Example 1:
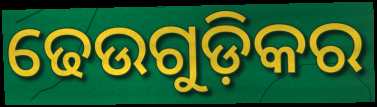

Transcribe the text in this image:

ଢେଉଗୁଡ଼ିକର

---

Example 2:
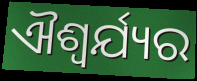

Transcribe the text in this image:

ଐଶ୍ଵର୍ଯ୍ୟର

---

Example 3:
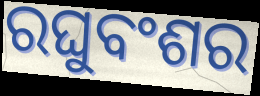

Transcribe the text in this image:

ରଘୁବଂଶର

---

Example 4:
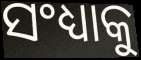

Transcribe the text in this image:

ସଂଧ୍ୟାକୁ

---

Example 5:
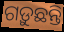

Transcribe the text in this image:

ଗଡ଼ୁଛନ୍ତି